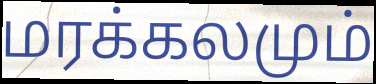
மரக்கலமும்